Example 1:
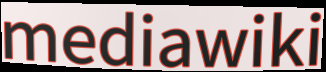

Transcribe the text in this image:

mediawiki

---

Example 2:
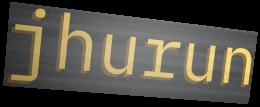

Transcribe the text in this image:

jhurun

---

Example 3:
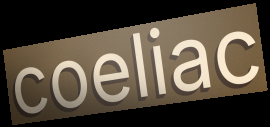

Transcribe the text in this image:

coeliac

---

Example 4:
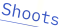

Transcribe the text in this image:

Shoots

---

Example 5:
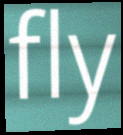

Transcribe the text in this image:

fly